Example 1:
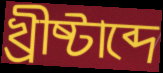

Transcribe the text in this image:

খ্রীষ্টাব্দে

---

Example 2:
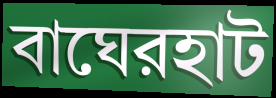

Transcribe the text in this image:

বাঘেরহাট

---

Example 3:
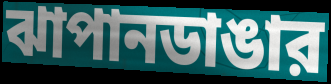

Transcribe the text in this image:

ঝাপানডাঙার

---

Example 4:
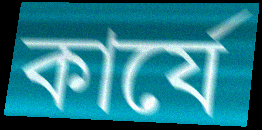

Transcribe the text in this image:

কার্যে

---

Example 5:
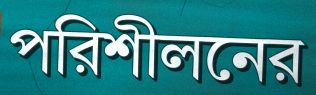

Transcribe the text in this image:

পরিশীলনের